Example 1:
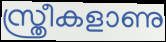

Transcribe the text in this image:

സ്ത്രീകളാണു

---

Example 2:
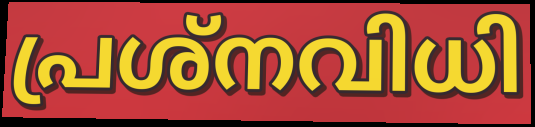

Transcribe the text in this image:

പ്രശ്നവിധി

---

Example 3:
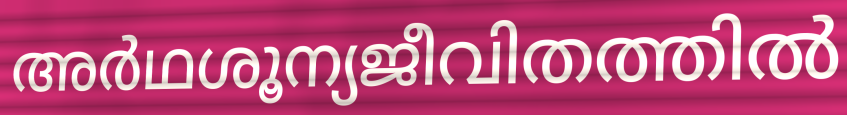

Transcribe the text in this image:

അർഥശൂന്യജീവിതത്തിൽ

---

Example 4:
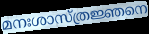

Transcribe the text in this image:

മനഃശാസ്ത്രജ്ഞനെ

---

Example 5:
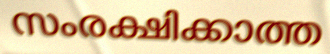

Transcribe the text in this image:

സംരക്ഷിക്കാത്ത